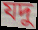
যদু